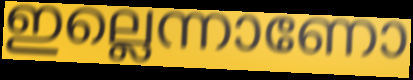
ഇല്ലെന്നാണോ